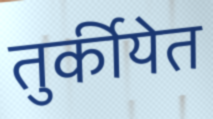
तुर्कीयेत